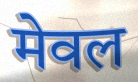
मेवल